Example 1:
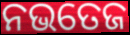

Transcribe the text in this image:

ନଭତେଜ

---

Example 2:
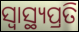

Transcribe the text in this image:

ସ୍ବାସ୍ଥ୍ୟପ୍ରତି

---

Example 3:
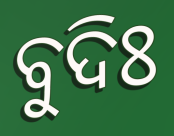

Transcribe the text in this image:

ବୁଦିଃ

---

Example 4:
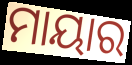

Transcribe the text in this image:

ମାୟାର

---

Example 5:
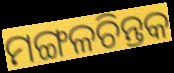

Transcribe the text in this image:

ମଙ୍ଗଳଚିନ୍ତକ